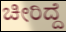
ಚೀರಿದ್ದೆ